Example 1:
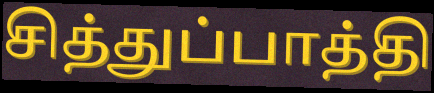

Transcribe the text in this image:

சித்துப்பாத்தி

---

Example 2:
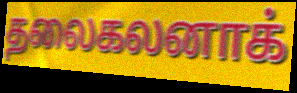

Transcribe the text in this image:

தலைகலனாக்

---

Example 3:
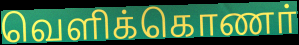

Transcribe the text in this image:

வெளிக்கொணர்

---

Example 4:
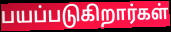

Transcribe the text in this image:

பயப்படுகிறார்கள்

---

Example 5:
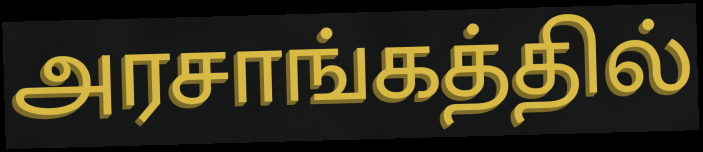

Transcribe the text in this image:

அரசாங்கத்தில்